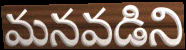
మనవడిని